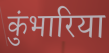
कुंभारिया